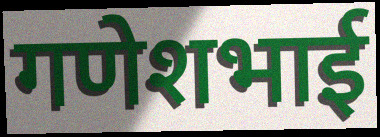
गणेशभाई